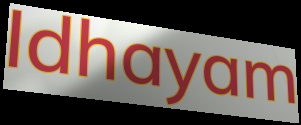
Idhayam